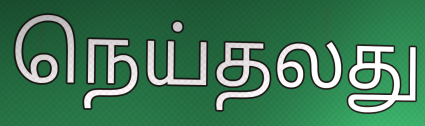
நெய்தலது